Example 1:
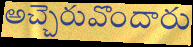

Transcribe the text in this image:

అచ్చెరువొందారు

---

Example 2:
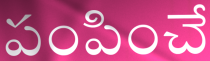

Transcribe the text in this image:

పంపించే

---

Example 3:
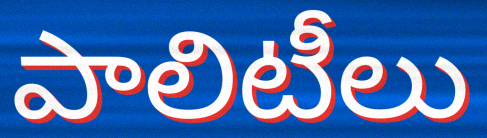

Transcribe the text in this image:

పాలిటీలు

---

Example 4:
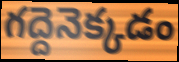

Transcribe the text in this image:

గద్దెనెక్కడం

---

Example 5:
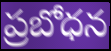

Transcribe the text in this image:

ప్రబోధన